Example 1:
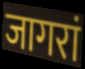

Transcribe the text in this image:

जागरां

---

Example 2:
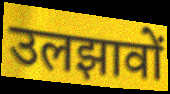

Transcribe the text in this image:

उलझावों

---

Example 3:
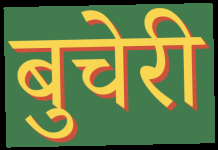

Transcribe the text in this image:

बुचेरी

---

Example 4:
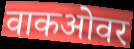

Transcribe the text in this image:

वाकओवर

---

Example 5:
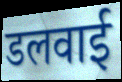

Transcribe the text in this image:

डलवाई